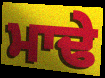
ਮਾਢੇ